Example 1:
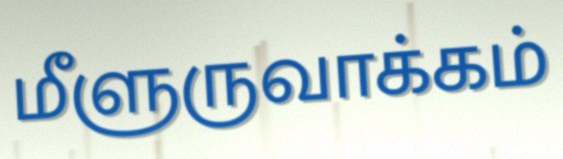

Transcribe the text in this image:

மீளுருவாக்கம்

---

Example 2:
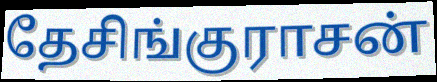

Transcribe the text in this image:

தேசிங்குராசன்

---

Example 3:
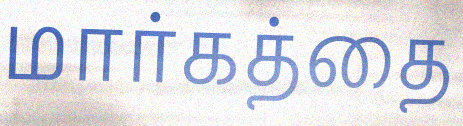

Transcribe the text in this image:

மார்கத்தை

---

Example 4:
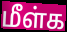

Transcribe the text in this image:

மீள்க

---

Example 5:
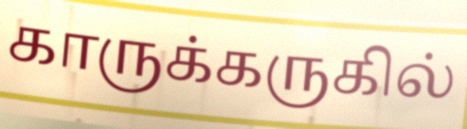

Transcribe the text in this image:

காருக்கருகில்